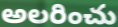
అలరించు